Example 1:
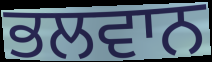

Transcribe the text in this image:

ਭਲਵਾਨ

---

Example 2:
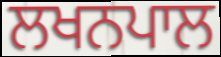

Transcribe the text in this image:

ਲਖਨਪਾਲ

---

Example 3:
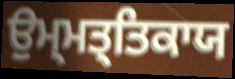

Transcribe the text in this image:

ਉਮ੍ਮਤ੍ਤਿਕਾਯ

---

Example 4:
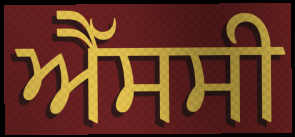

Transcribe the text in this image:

ਐੱਸਸੀ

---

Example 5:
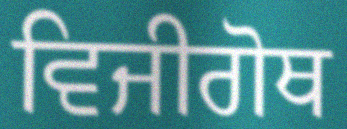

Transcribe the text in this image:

ਵਿਜੀਗੋਥ